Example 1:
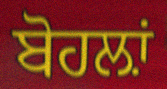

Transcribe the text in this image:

ਬੋਹਲ਼ਾਂ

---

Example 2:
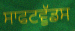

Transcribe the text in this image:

ਸਾਫਟਵੁੱਡਸ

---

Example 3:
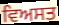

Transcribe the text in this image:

ਵਿਅਸਤ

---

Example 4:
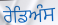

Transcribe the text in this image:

ਰੇਡਿਅੰਸ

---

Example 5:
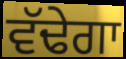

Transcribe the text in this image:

ਵੱਢੇਗਾ